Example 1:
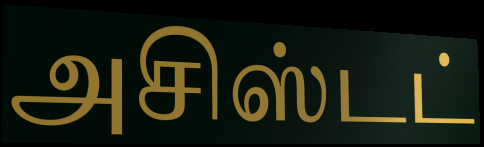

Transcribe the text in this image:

அசிஸ்டட்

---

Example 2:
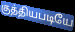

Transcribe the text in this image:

குத்தியபடியே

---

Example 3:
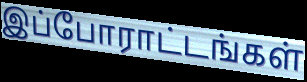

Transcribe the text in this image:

இப்போராட்டங்கள்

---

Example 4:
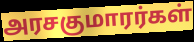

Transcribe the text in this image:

அரசகுமாரர்கள்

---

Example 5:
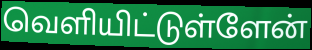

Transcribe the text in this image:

வெளியிட்டுள்ளேன்